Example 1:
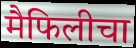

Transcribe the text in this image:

मैफिलीचा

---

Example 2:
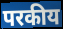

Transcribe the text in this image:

परकीय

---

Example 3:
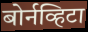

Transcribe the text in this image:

बोर्नव्हिटा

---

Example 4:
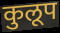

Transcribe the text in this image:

कुलूप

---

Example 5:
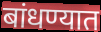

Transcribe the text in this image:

बांधण्‍यात